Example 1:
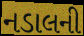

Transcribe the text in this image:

નડાલની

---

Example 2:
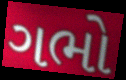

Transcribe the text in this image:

ગભો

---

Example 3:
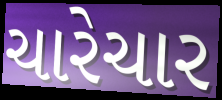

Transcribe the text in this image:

ચારેચાર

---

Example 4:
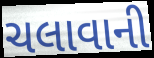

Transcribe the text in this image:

ચલાવાની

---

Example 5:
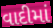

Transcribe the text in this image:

વાદીમાં